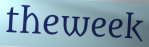
theweek